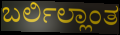
ಬರ್ಲಿಲ್ಲಾಂತ